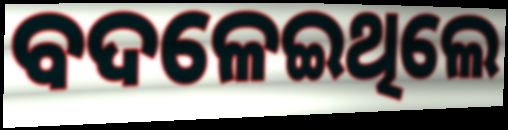
ବଦଳେଇଥିଲେ